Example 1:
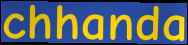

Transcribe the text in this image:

chhanda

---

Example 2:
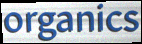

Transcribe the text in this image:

organics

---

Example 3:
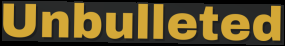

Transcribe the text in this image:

Unbulleted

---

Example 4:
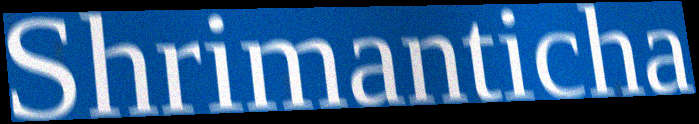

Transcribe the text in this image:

Shrimanticha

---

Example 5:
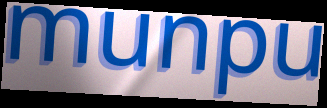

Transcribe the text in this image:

munpu